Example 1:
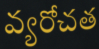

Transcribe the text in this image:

వ్యరోచత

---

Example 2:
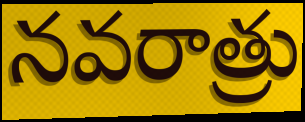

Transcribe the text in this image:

నవరాత్రు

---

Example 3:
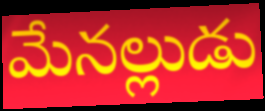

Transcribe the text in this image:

మేనల్లుడు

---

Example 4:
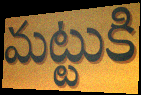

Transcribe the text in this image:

మట్టుకి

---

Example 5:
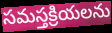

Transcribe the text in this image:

సమస్తక్రియలను